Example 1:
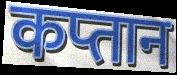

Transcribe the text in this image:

कप्‍तान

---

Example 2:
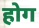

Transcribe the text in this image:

होग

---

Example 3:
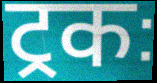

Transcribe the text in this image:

ट्रकः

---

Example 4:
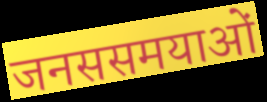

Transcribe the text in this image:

जनससमयाओं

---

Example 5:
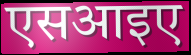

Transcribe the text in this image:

एसआइए